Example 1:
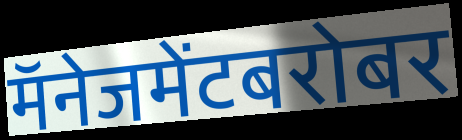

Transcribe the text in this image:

मॅनेजमेंटबरोबर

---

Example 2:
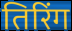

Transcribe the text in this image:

तिरिंग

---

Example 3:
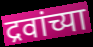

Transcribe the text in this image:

द्रवांच्या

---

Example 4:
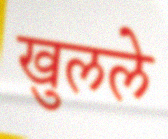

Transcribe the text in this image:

खुलले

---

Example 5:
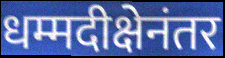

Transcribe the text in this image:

धम्मदीक्षेनंतर